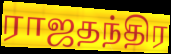
ராஜதந்திர